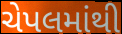
ચેપલમાંથી